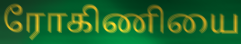
ரோகிணியை